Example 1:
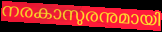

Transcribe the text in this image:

നരകാസുരനുമായി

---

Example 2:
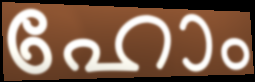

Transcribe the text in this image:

ഹോം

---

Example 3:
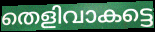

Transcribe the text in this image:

തെളിവാകട്ടെ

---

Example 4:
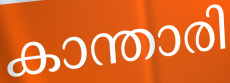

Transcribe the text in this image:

കാന്താരി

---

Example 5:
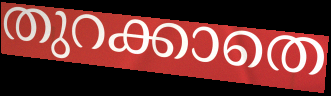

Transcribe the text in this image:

തുറക്കാതെ